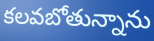
కలవబోతున్నాను